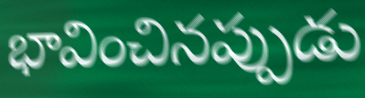
భావించినప్పుడు